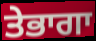
ਤੇਭਾਗਾ